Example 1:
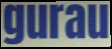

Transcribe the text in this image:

gurau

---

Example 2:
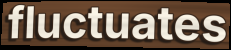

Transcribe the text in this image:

fluctuates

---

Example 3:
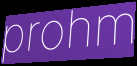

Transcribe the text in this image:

prohm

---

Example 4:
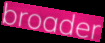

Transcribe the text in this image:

broader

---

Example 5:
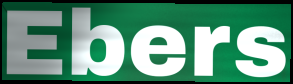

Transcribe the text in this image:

Ebers